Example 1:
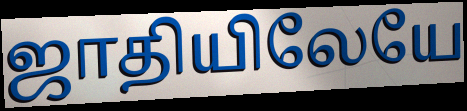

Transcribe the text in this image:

ஜாதியிலேயே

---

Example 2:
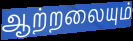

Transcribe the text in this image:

ஆற்றலையும்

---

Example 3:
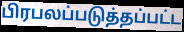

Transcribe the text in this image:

பிரபலப்படுத்தப்பட்ட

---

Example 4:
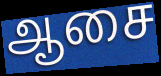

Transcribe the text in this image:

ஆசை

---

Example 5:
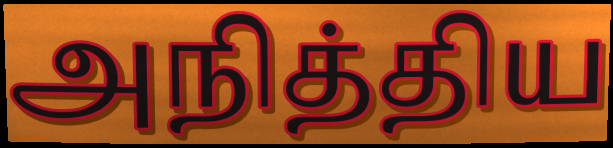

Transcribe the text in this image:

அநித்திய